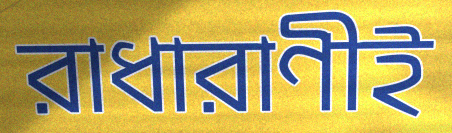
রাধারাণীই